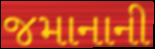
જમાનાની